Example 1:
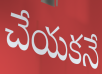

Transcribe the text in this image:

చేయకనే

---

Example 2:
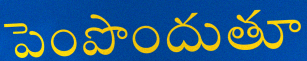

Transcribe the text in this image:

పెంపొందుతూ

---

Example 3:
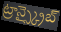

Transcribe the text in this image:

ట్రాన్స్క్రైబ్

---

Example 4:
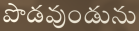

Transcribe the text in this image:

పొడవుండును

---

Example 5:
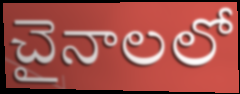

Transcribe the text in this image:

చైనాలలో